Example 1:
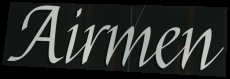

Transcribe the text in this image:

Airmen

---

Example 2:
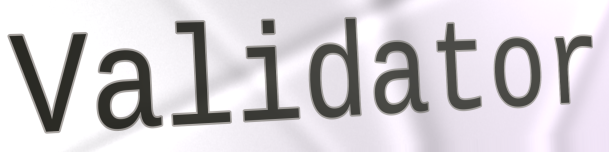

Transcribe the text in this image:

Validator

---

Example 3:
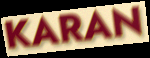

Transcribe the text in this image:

KARAN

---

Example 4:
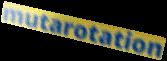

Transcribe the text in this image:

mutarotation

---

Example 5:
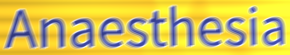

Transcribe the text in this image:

Anaesthesia